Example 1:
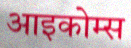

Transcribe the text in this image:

आइकोम्स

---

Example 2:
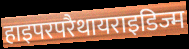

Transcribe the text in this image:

हाइपरपरैथायराइडिज्म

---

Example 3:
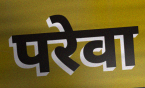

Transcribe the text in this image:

परेवा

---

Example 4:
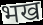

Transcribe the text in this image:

भख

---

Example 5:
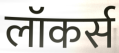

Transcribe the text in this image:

लॉकर्स